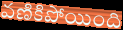
వణికిపోయింది